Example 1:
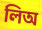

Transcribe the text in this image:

লিঅ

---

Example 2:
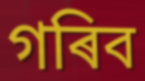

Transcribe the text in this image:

গৰিব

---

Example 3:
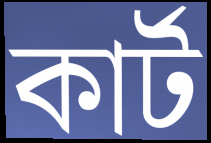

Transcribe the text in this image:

কাৰ্ট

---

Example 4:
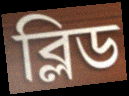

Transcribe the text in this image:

ব্লিড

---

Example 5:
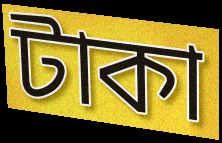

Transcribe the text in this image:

টাকা